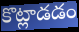
కొట్లాడడం